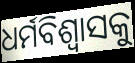
ଧର୍ମବିଶ୍ଵାସକୁ